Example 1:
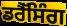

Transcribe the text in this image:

ਡਰੈੱਸਿੰਗ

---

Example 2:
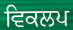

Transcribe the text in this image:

ਵਿਕਲਪ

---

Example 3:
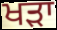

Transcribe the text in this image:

ਖੜਾ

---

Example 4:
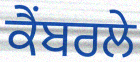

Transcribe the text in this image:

ਕੈਂਬਰਲੇ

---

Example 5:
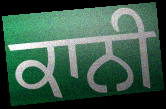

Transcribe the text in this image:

ਕਾਨੀ